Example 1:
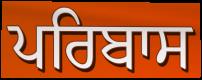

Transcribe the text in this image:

ਪਰਿਬਾਸ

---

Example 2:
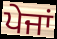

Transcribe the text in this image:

ਪੇਜਾਂ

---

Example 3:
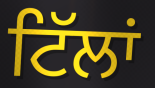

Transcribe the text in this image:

ਟਿੱਲਾਂ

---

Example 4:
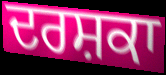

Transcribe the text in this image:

ਦਰਸ਼ਕਾ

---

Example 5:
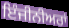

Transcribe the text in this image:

ਇੰਜੀਨੀਅਰਾਂ